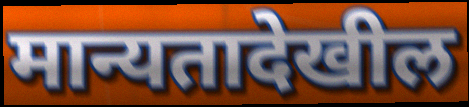
मान्यतादेखील